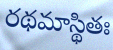
రథమాస్థితః